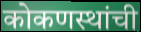
कोकणस्थांची